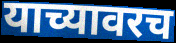
याच्यावरच